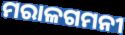
ମରାଳଗମନୀ